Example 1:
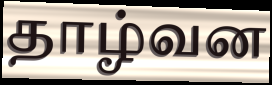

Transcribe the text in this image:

தாழ்வன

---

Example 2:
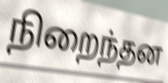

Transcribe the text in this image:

நிறைந்தன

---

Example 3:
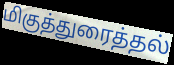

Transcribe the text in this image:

மிகுத்துரைத்தல்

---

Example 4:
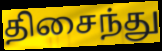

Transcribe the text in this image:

திசைந்து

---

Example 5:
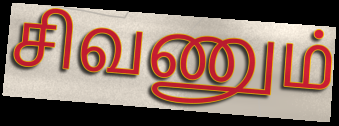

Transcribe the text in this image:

சிவணும்